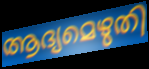
ആദ്യമെഴുതി